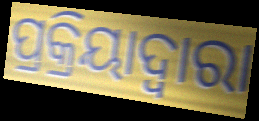
ପ୍ରକ୍ରିୟାଦ୍ଵାରା